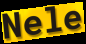
Nele